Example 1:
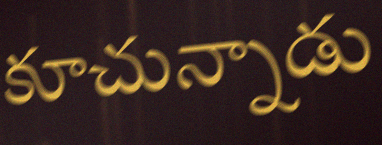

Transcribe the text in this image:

కూచున్నాడు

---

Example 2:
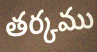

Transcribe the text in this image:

తర్కము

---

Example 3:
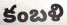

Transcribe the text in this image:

కంబళి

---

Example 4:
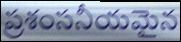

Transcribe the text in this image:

ప్రశంసనీయమైన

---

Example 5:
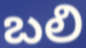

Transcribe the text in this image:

బలి